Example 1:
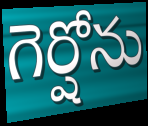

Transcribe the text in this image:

గెర్షోను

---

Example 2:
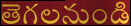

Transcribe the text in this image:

తెగలనుండి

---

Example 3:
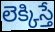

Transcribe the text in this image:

లెక్కిస్తే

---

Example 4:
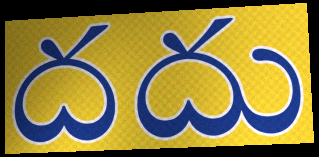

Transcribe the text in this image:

దదు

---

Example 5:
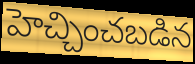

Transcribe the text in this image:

హెచ్చించబడిన